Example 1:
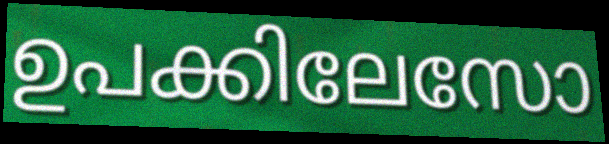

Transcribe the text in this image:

ഉപക്കിലേസോ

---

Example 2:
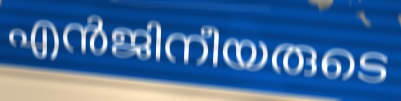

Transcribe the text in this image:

എൻജിനീയരുടെ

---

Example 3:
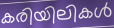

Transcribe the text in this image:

കരിയിലികൾ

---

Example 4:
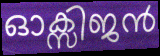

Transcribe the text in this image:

ഓക്സിജൻ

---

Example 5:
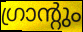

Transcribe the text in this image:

ഗ്രാന്റും